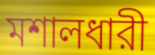
মশালধারী